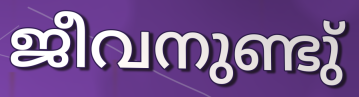
ജീവനുണ്ടു്